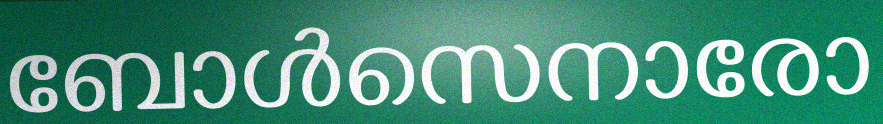
ബോൾസെനാരോ